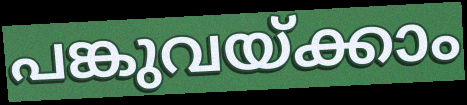
പങ്കുവയ്ക്കാം